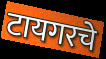
टायगरचे